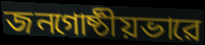
জনগোষ্ঠীয়ভাৱে